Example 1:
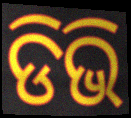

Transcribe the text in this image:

ଡିଭି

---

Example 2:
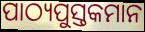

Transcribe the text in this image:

ପାଠ୍ୟପୁସ୍ତକମାନ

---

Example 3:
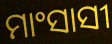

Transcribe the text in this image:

ମାଂସାସୀ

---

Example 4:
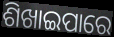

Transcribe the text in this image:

ଶିଖାଇପାରେ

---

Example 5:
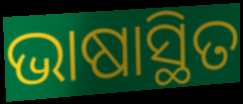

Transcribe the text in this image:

ଭାଷାସ୍ଥିତ